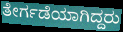
ತೇರ್ಗಡೆಯಾಗಿದ್ದರು